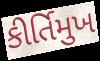
કીર્તિમુખ